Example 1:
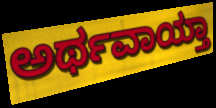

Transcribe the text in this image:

ಅರ್ಥವಾಯ್ತಾ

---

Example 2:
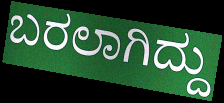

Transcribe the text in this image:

ಬರಲಾಗಿದ್ದು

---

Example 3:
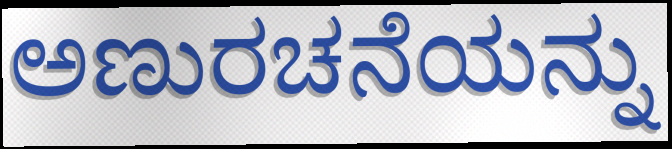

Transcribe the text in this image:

ಅಣುರಚನೆಯನ್ನು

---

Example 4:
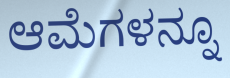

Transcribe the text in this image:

ಆಮೆಗಳನ್ನೂ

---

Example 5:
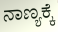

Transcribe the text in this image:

ನಾಣ್ಯಕ್ಕೆ